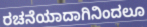
ರಚನೆಯಾದಾಗಿನಿಂದಲೂ